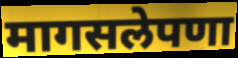
मागसलेपणा